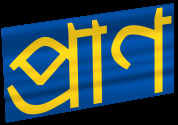
প্রাণ